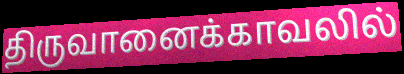
திருவானைக்காவலில்